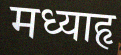
मध्याहृ